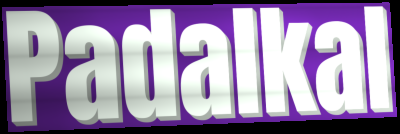
Padalkal